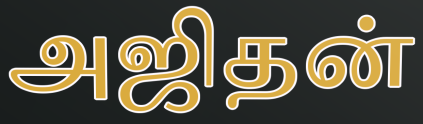
அஜிதன்